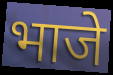
भाजे